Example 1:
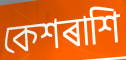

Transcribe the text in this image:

কেশৰাশি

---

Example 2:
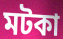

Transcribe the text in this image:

মটকা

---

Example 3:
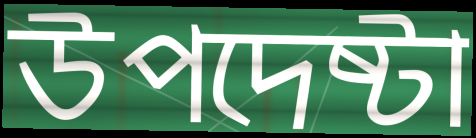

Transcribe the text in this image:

উপদেষ্টা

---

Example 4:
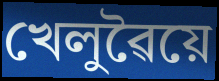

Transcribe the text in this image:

খেলুৱৈয়ে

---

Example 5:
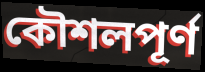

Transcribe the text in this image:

কৌশলপূৰ্ণ